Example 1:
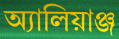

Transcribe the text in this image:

অ্যালিয়াঞ্জ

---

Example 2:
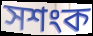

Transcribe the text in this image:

সশংক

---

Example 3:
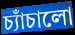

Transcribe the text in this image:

চ্যাঁচালো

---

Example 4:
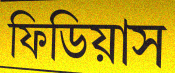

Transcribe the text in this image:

ফিডিয়াস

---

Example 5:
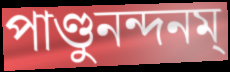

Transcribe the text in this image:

পাণ্ডুনন্দনম্